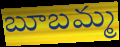
బూబమ్మ